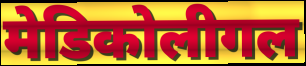
मेडिकोलीगल